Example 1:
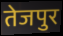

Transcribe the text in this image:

तेजपुर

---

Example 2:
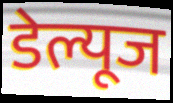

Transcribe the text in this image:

डेल्यूज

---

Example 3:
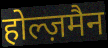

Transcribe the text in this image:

होल्ज़मैन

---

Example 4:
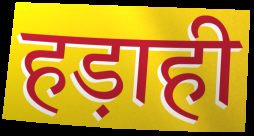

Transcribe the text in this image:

हड़ाही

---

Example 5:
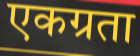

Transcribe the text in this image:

एकग्रता